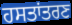
ਹਸਤਾਂਤਰਣ